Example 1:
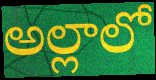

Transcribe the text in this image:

అల్లాలో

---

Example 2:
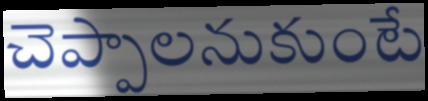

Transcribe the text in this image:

చెప్పాలనుకుంటే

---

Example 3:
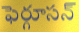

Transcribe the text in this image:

ఫెర్గూసన్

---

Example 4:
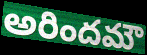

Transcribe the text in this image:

అరిందమౌ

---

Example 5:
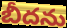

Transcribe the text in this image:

బీదను